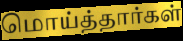
மொய்த்தார்கள்